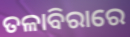
ତଳାବିରାରେ